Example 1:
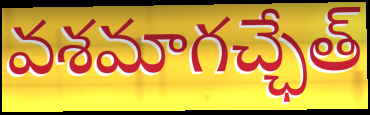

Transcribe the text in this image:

వశమాగచ్ఛేత్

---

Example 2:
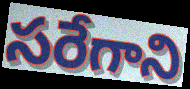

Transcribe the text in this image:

సరేగాని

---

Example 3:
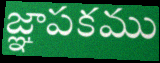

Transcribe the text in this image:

జ్ఞాపకము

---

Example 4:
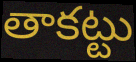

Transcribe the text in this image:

తాకట్టు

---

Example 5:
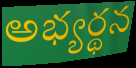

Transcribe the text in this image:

అభ్యర్థన